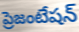
ప్రెజంటేషన్